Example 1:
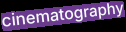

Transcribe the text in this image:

cinematography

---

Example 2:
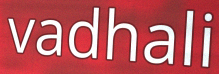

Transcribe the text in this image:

vadhali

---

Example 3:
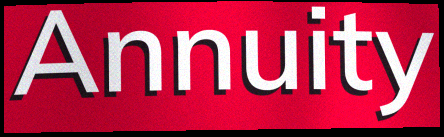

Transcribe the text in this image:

Annuity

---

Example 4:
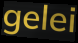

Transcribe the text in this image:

gelei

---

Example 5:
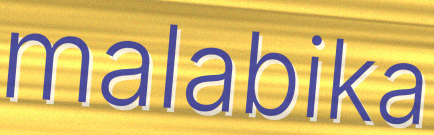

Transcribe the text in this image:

malabika